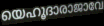
യെഹൂദാരാജാവേ